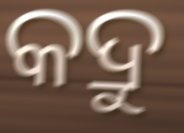
କଦ୍ରୁ